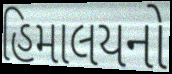
હિમાલયનો